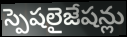
స్పెషలైజేషన్లు